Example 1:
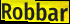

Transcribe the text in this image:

Robbar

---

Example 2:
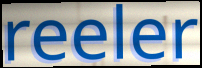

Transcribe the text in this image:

reeler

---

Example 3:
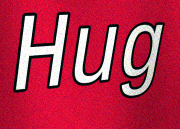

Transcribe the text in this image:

Hug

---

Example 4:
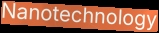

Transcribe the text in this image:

Nanotechnology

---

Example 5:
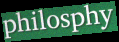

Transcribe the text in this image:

philosphy